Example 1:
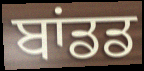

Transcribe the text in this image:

ਬਾਂਡਡ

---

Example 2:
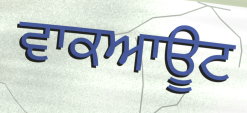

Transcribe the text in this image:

ਵਾਕਆਊਟ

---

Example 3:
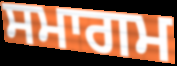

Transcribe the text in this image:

ਸਮਾਗਮ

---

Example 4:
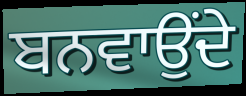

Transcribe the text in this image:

ਬਨਵਾਉਂਦੇ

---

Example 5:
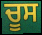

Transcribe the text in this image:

ਚੂਸ